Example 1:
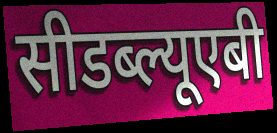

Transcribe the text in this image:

सीडब्ल्यूएबी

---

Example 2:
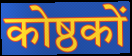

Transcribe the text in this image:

कोष्ठकों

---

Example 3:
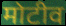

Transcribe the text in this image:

मोटीव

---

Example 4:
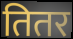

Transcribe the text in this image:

तितर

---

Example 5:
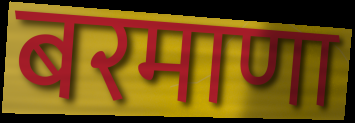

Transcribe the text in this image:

बरमाणा